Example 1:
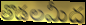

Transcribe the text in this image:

తొడలమీద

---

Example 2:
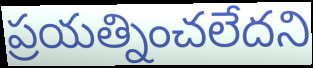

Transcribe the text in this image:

ప్రయత్నించలేదని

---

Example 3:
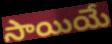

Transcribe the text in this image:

సాయియే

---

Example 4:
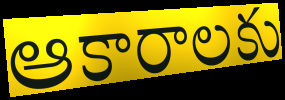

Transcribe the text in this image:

ఆకారాలకు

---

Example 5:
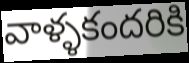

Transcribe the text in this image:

వాళ్ళకందరికి